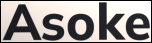
Asoke